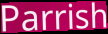
Parrish